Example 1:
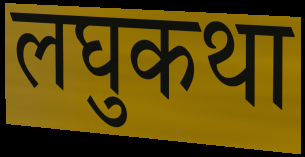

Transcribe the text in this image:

लघुकथा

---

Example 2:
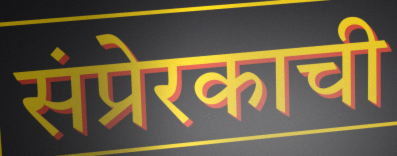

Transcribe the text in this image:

संप्रेरकाची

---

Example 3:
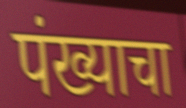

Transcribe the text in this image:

पंख्याचा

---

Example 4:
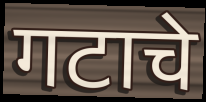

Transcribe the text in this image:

गटाचे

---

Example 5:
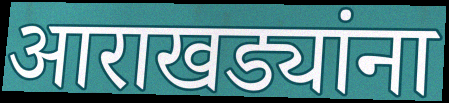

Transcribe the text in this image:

आराखड्यांना